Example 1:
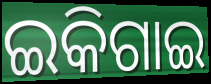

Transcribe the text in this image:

ଇକିଗାଇ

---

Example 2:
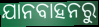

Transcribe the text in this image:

ଯାନବାହନରୁ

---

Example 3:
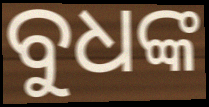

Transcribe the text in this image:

ବୁଧଙ୍କ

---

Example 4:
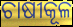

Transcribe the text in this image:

ଚାଷୀକୂଳ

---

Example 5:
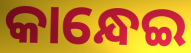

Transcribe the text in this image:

କାନ୍ଧେଇ